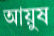
আয়ুষ